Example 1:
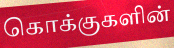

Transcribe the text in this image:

கொக்குகளின்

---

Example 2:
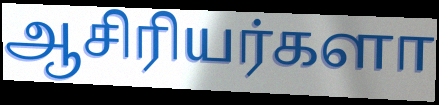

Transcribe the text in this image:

ஆசிரியர்களா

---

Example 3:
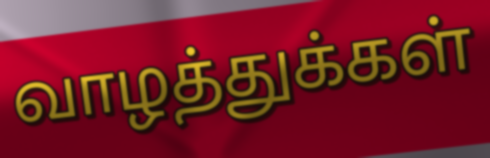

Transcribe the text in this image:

வாழத்துக்கள்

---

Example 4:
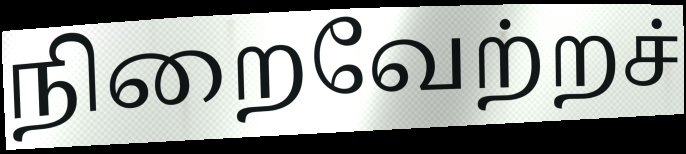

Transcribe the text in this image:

நிறைவேற்றச்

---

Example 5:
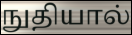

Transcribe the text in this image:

நுதியால்